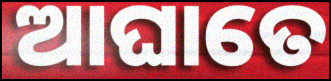
ଆଘାତେ